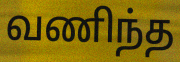
வணிந்த